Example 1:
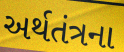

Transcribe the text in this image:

અર્થતંત્રના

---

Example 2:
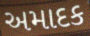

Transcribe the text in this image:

અમાદક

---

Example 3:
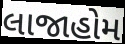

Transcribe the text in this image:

લાજાહોમ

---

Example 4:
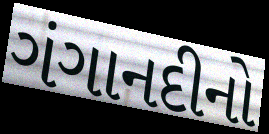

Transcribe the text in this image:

ગંગાનદીનો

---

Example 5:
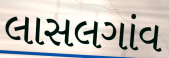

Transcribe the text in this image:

લાસલગાંવ